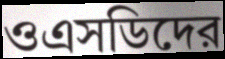
ওএসডিদের